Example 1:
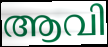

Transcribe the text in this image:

ആവി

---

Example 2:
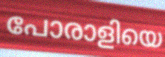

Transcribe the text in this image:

പോരാളിയെ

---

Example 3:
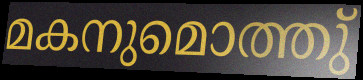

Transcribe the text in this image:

മകനുമൊത്തു്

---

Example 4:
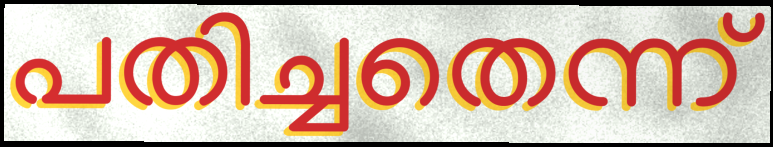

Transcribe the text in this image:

പതിച്ചതെന്ന്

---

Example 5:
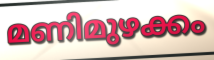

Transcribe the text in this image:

മണിമുഴക്കം